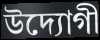
উদ্যোগী